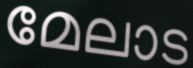
മേലാട